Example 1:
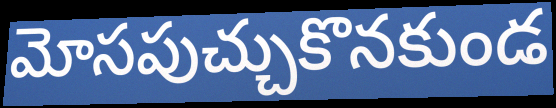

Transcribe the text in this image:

మోసపుచ్చుకొనకుండ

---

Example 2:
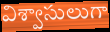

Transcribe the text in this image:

విశ్వాసులుగా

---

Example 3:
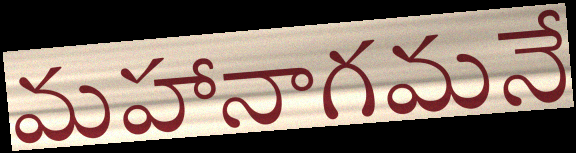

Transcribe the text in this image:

మహానాగమనే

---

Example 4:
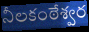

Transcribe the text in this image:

నీలకంఠేశ్వర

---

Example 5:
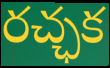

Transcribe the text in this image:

రచ్ఛక